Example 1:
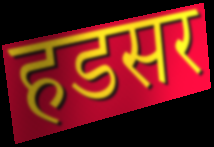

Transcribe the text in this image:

हडसर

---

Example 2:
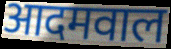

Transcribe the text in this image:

आदमवाल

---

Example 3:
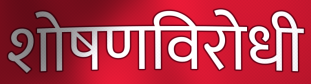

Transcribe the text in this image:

शोषणविरोधी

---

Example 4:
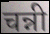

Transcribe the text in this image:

चन्नी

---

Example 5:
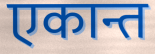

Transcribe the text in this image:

एकान्त